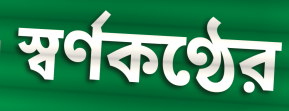
স্বর্ণকণ্ঠের